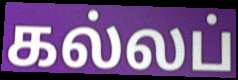
கல்லப்